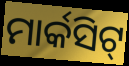
ମାର୍କସିଟ୍